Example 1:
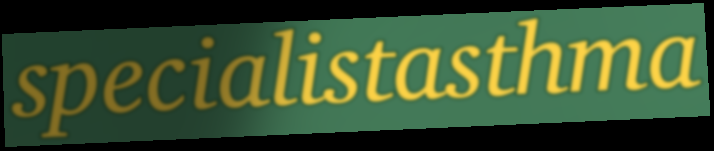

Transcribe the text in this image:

specialistasthma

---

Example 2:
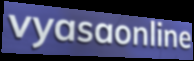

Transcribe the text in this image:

vyasaonline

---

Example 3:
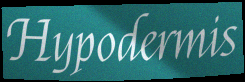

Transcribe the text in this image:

Hypodermis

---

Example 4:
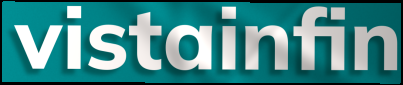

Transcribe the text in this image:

vistainfin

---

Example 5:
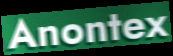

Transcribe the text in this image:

Anontex